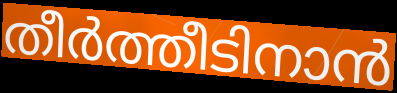
തീർത്തീടിനാൻ